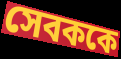
সেবককে